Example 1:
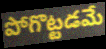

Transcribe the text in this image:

పోగొట్టడమే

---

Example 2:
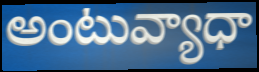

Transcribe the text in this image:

అంటువ్యాధా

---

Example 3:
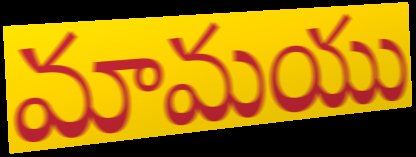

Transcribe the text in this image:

మామయు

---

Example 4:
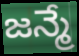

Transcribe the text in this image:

జన్మే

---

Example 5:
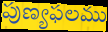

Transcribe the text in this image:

పుణ్యఫలము